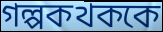
গল্পকথককে